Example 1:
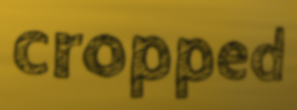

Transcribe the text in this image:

cropped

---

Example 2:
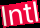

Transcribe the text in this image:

Intl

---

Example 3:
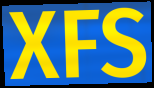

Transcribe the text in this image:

XFS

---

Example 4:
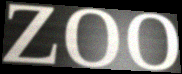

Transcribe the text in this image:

zoo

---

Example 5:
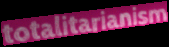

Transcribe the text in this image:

totalitarianism